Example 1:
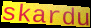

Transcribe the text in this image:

skardu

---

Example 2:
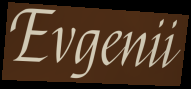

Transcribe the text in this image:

Evgenii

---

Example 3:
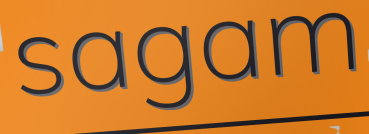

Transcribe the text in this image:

sagam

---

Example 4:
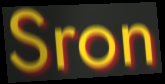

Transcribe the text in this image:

Sron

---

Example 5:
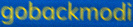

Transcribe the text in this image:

gobackmodi